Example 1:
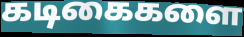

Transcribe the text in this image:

கடிகைகளை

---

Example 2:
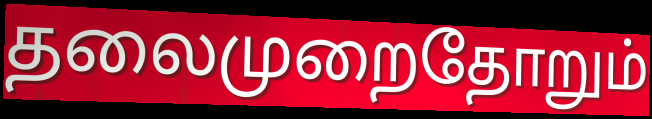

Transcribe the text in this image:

தலைமுறைதோறும்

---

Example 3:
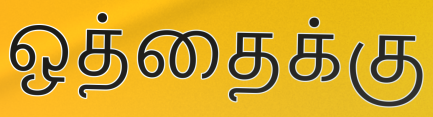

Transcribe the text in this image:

ஒத்தைக்கு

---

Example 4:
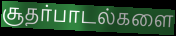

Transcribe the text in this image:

சூதர்பாடல்களை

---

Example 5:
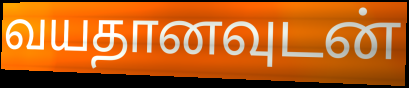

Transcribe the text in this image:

வயதானவுடன்